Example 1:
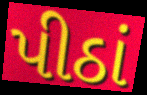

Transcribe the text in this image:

પીઠાં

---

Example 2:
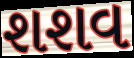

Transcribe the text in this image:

શશવ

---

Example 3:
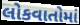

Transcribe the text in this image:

લોકવાતોમાં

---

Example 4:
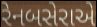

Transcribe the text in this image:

રેનબસેરાએ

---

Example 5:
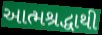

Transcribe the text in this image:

આત્મશ્રદ્ધાથી